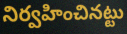
నిర్వహించినట్టు